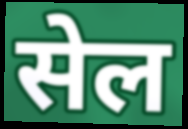
सेल